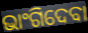
ଭାଂଗିଦେବା